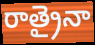
రాత్రైనా